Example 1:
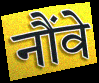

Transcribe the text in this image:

नौंवे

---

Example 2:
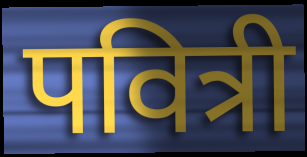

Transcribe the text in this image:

पवित्री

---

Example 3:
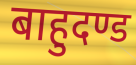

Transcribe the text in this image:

बाहुदण्ड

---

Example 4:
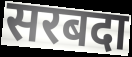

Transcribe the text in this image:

सरबदा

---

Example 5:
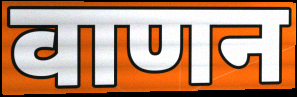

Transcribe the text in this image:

वाणन